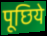
पूछिये